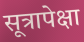
सूत्रापेक्षा